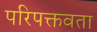
परिपक्तवता